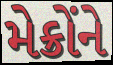
મેક્રોંને